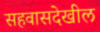
सहवासदेखील